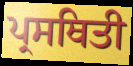
ਪ੍ਰਸਥਿਤੀ